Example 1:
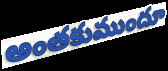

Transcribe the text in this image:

అంతకుముందూ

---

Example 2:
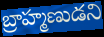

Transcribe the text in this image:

బ్రాహ్మణుడని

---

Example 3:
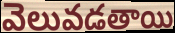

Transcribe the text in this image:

వెలువడతాయి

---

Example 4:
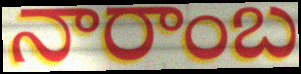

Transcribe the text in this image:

నారాంబ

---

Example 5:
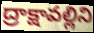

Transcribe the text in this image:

ద్రాక్షావల్లిని